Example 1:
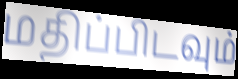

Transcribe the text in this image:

மதிப்பிடவும்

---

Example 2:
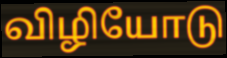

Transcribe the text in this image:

விழியோடு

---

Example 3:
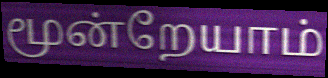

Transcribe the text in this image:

மூன்றேயாம்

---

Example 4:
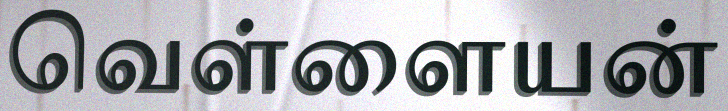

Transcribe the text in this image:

வெள்ளையன்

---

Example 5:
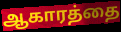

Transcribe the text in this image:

ஆகாரத்தை